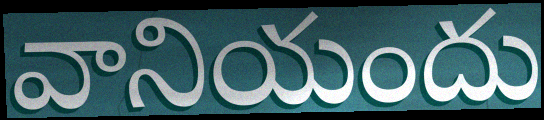
వానియందు